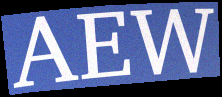
AEW